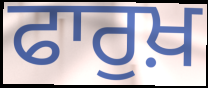
ਫਾਰੁਖ਼